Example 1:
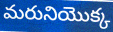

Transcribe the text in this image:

మరునియొక్క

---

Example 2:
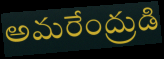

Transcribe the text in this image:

అమరేంద్రుడి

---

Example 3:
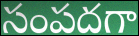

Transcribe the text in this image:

సంపదగా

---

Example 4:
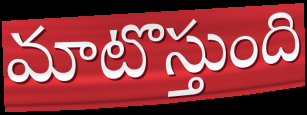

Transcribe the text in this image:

మాటొస్తుంది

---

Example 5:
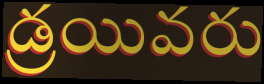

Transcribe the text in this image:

డ్రయివరు